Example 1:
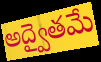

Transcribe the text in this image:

అద్వైతమే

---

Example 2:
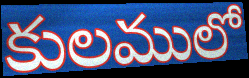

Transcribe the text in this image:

కులములో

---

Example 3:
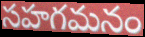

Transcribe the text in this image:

సహగమనం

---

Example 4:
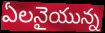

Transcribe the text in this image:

ఏలనైయున్న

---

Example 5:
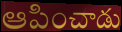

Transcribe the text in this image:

ఆపించాడు